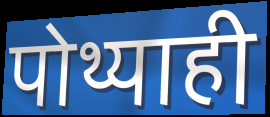
पोथ्याही